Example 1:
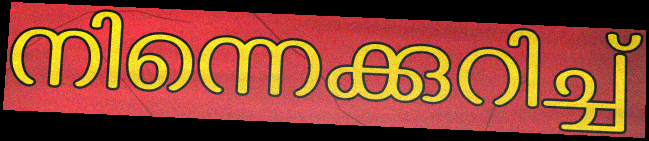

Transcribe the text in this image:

നിന്നെക്കുറിച്ച്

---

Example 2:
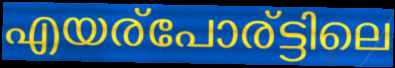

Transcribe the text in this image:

എയര്പോര്ട്ടിലെ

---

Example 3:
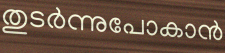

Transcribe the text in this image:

തുടർന്നുപോകാൻ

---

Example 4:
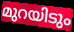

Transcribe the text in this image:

മുറയിടും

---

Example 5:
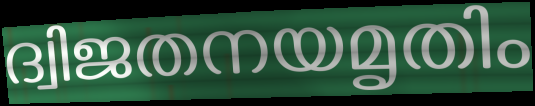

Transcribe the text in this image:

ദ്വിജതനയമൃതിം